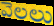
వెలలు